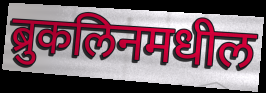
ब्रुकलिनमधील